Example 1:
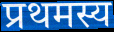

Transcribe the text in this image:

प्रथमस्य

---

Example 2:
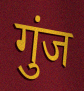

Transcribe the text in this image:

गुंज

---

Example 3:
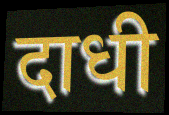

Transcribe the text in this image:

दाधी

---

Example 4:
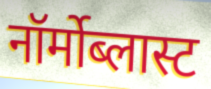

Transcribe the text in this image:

नॉर्मोब्लास्ट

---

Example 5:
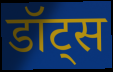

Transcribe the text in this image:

डॉट्स